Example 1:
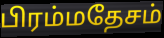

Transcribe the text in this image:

பிரம்மதேசம்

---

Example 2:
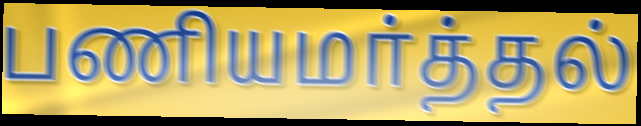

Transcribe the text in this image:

பணியமர்த்தல்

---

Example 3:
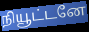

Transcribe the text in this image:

நியூட்டனே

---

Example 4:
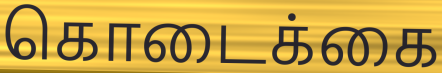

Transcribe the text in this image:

கொடைக்கை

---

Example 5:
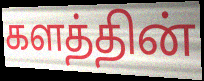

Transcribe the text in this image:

களத்தின்